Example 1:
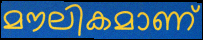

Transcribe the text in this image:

മൗലികമാണ്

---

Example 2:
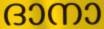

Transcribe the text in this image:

ദാനാ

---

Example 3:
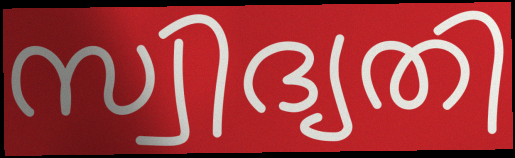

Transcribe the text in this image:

സ്വിദ്യതി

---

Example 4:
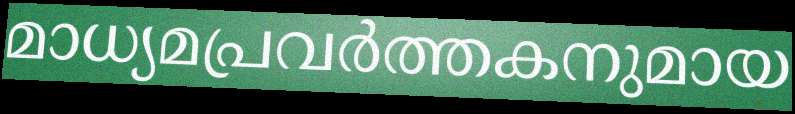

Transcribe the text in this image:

മാധ്യമപ്രവർത്തകനുമായ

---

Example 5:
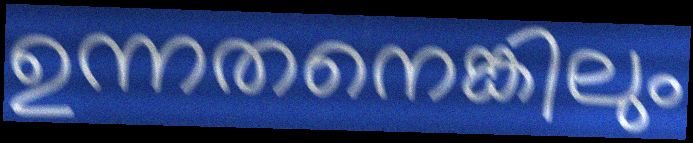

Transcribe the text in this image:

ഉന്നതനെങ്കിലും